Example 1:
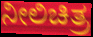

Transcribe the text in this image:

ನೀಲಿಚಿತ್ರ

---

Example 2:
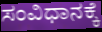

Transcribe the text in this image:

ಸಂವಿಧಾನಕ್ಕೆ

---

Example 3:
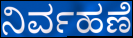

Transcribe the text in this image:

ನಿರ್ವಹಣೆ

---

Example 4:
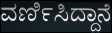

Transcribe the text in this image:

ವರ್ಣಿಸಿದ್ದಾನೆ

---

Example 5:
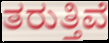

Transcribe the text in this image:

ತರುತ್ತಿವೆ